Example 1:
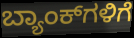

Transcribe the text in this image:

ಬ್ಯಾಂಕ್‌ಗಳಿಗೆ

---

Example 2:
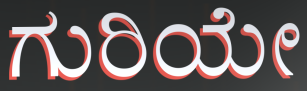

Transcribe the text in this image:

ಗುರಿಯೇ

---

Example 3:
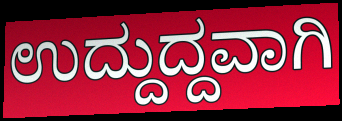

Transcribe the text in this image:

ಉದ್ದುದ್ದವಾಗಿ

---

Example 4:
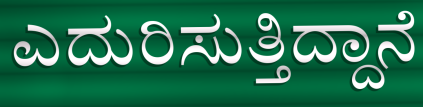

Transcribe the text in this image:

ಎದುರಿಸುತ್ತಿದ್ದಾನೆ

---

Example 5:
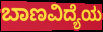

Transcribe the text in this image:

ಬಾಣವಿದ್ಯೆಯ